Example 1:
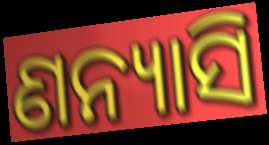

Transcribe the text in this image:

ଣନ୍ୟାସି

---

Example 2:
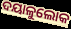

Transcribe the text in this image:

ଦୟାଳୁଲୋକ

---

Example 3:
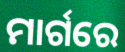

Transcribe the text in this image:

ମାର୍ଗରେ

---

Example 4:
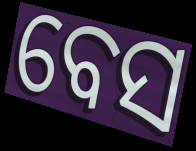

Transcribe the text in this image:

ବେସ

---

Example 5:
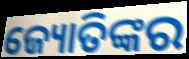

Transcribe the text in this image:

ଜ୍ୟୋତିଙ୍କର